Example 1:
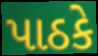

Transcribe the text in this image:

પાઠકે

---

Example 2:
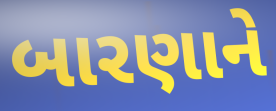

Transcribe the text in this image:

બારણાને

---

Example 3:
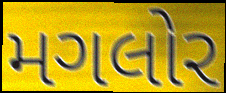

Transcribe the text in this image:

મગલોર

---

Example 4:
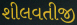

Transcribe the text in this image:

શીલવતીજી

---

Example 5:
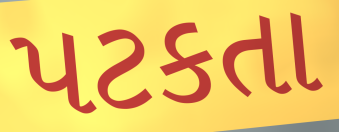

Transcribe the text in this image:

પટકતા